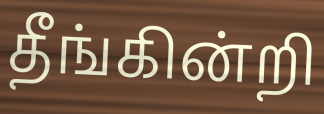
தீங்கின்றி